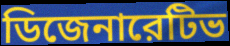
ডিজেনারেটিভ